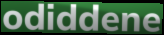
odiddene